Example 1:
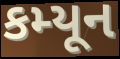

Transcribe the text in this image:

કમ્યૂન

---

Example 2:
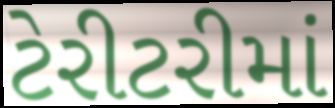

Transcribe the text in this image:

ટેરીટરીમાં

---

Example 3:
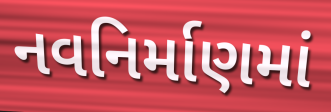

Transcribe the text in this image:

નવનિર્માણમાં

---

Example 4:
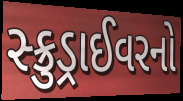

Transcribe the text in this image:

સ્ક્રુડ્રાઈવરનો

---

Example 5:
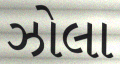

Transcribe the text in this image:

ઝોલા